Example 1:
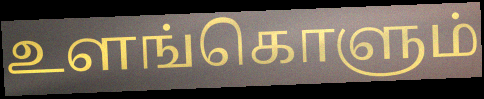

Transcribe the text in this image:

உளங்கொளும்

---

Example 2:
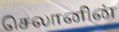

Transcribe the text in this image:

செலானின்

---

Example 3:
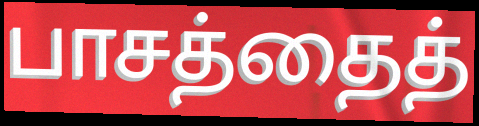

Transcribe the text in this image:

பாசத்தைத்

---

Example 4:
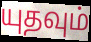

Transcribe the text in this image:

யுதவும்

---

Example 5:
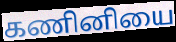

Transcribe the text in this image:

கணினியை